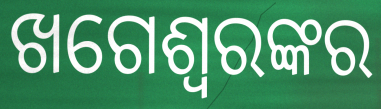
ଖଗେଶ୍ୱରଙ୍କର